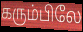
கரும்பிலே